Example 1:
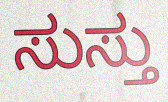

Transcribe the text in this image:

ಸುಸ್ತು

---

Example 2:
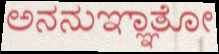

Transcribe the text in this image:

ಅನನುಞ್ಞಾತೋ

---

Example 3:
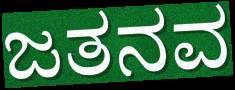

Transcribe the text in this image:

ಜತನವ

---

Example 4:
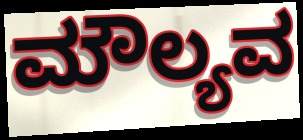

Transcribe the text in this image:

ಮೌಲ್ಯವ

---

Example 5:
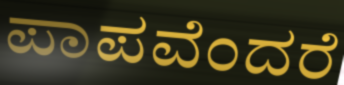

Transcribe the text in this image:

ಪಾಪವೆಂದರೆ